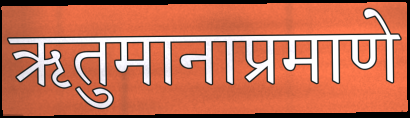
ऋतुमानाप्रमाणे